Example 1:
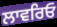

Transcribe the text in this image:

ਲਾਵਰਿਓ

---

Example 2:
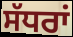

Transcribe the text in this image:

ਸੱਧਰਾਂ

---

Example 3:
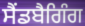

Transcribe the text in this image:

ਸੈਂਡਬੈਗਿੰਗ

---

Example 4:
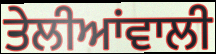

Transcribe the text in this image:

ਤੇਲੀਆਂਵਾਲੀ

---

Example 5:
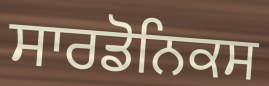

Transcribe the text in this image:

ਸਾਰਡੋਨਿਕਸ